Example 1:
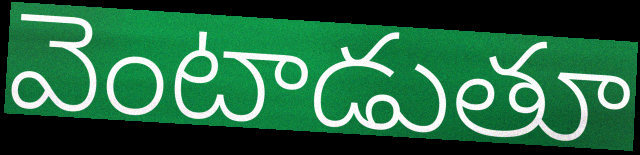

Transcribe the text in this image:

వెంటాడుతూ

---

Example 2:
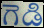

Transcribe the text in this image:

గెడి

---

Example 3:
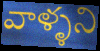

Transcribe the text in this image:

వాళ్ళని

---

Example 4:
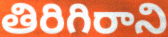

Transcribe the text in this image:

తిరిగిరాని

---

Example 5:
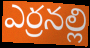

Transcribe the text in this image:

ఎర్రనల్లి